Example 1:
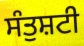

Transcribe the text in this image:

ਸੰਤੁਸ਼ਟੀ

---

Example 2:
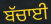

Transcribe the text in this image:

ਬੱਚਾਈ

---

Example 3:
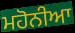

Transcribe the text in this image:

ਮਹੋਨੀਆ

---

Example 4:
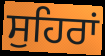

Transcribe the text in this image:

ਸੁਹਿਰਾਂ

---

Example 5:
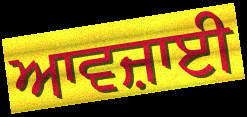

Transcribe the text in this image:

ਆਵਜ਼ਾਈ